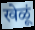
खेळूं